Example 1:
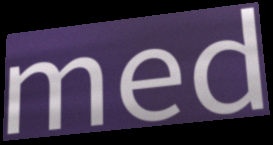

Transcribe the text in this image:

med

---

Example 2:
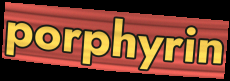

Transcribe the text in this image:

porphyrin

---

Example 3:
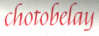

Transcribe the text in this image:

chotobelay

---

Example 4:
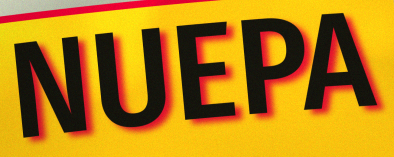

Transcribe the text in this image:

NUEPA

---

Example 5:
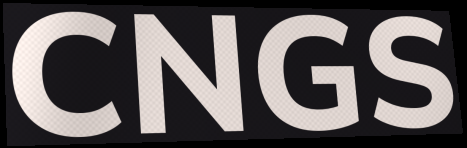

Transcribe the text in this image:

CNGS